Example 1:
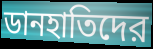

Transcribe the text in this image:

ডানহাতিদের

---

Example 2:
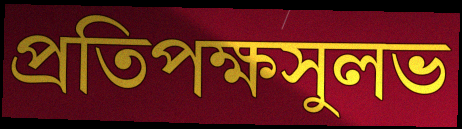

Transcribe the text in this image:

প্রতিপক্ষসুলভ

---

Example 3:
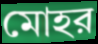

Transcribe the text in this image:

মোহর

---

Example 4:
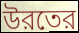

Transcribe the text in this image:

উরতের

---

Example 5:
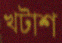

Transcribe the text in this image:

খটাশ